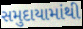
સમુદાયામાંથી